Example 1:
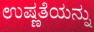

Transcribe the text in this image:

ಉಷ್ಣತೆಯನ್ನು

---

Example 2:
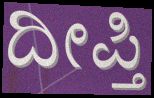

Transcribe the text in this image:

ದೀಪ್ತಿ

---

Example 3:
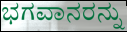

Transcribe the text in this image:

ಭಗವಾನರನ್ನು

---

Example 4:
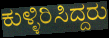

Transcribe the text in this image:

ಕುಳ್ಳಿರಿಸಿದ್ದರು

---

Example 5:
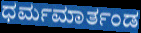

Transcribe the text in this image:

ಧರ್ಮಮಾರ್ತಂಡ